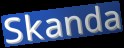
Skanda